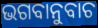
ଭଗବାନୁବାଚ